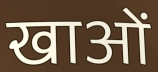
खाओं